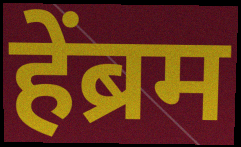
हेंब्रम